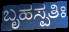
ಬೃಹಸ್ಪತಿಃ